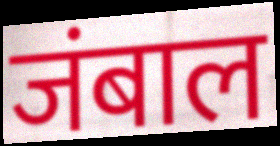
जंबाल